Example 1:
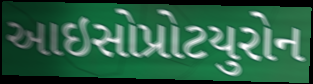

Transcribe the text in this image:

આઇસોપ્રોટયુરોન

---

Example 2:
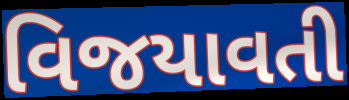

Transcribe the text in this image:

વિજયાવતી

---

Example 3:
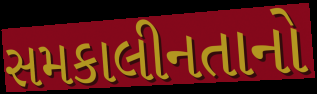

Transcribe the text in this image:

સમકાલીનતાનો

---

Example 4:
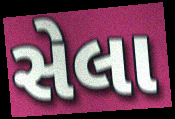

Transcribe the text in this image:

સેલા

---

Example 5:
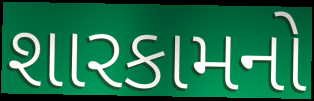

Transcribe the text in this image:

શારકામનો